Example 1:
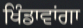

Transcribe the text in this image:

ਖਿੰਡਾਵਾਂਗਾ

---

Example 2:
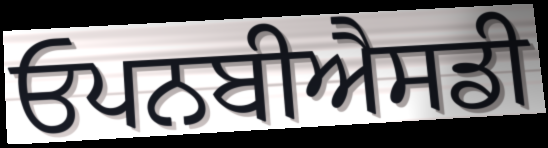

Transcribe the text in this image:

ਓਪਨਬੀਐਸਡੀ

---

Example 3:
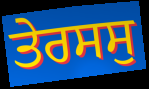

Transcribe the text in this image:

ਤੇਰਸਸੁ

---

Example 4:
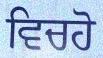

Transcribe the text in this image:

ਵਿਚਹੋ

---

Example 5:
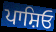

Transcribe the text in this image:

ਪਾਸ਼ਿਓ